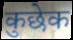
कुछेक